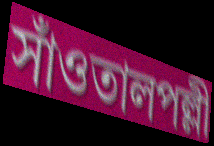
সাঁওতালপল্লী